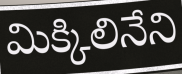
మిక్కిలినేని